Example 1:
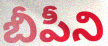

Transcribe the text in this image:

బీపీని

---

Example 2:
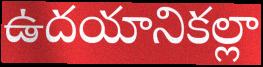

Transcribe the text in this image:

ఉదయానికల్లా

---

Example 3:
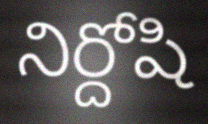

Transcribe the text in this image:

నిర్దోషి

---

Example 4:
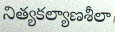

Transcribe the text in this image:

నిత్యకల్యాణశీలా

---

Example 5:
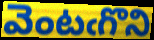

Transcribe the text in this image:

వెంటఁగొని